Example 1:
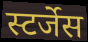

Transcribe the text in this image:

स्टर्जेस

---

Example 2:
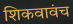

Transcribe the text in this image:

शिकवावंच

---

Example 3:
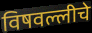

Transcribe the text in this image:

विषवल्लीचे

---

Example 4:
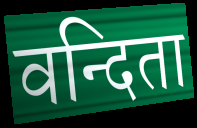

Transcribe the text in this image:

वन्दिता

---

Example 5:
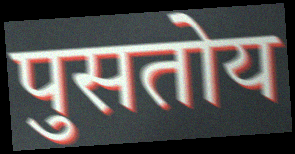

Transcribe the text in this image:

पुसतोय